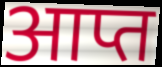
आप्त